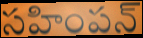
సహింపన్